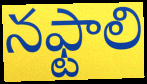
నఫ్టాలి